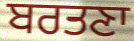
ਬਰਤਣਾ